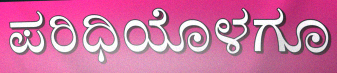
ಪರಿಧಿಯೊಳಗೂ